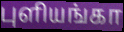
புளியங்கா